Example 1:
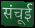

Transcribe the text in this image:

संचूई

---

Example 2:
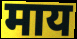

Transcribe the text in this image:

माय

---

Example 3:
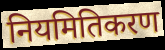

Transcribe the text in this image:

नियमितिकरण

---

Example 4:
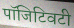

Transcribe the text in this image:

पॉजिटिवटी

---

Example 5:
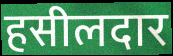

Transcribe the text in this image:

हसीलदार